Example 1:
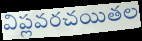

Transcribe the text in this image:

విప్లవరచయితల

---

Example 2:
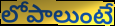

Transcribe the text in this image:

లోపాలుంటే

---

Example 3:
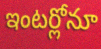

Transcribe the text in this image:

ఇంటర్లోనూ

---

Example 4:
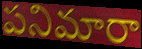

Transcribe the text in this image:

పనిమారా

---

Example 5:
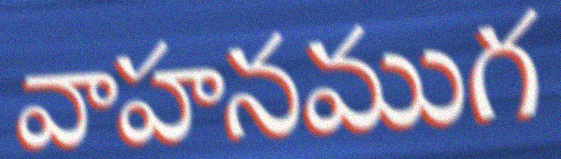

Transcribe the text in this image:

వాహనముగ